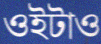
ওইটাও